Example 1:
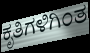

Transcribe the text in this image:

ಕೃತಿಗಳಿಗಿಂತ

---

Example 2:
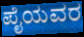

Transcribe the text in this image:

ಪೈಯವರ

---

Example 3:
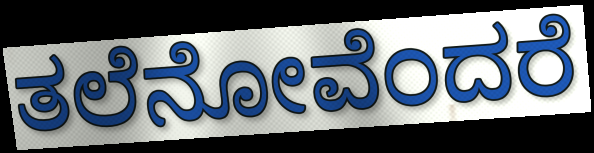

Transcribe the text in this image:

ತಲೆನೋವೆಂದರೆ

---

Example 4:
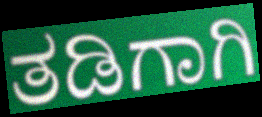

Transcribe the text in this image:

ತಡಿಗಾಗಿ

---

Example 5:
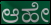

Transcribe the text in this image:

ಆಹೇ